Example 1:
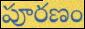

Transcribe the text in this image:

పూరణం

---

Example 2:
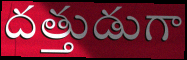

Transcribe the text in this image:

దత్తుడుగా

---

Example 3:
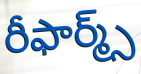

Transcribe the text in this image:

రీఫార్మ్స్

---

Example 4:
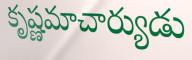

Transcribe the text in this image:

కృష్ణమాచార్యుడు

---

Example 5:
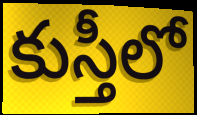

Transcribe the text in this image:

కుస్తీలో